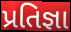
પ્રતિજ્ઞા